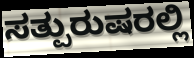
ಸತ್ಪುರುಷರಲ್ಲಿ